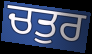
ਚਤੁਰ